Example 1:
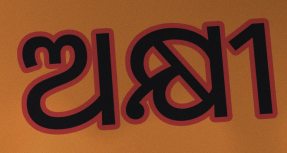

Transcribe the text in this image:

ଅକ୍ଷୀ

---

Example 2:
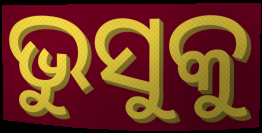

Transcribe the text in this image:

ଭୁସୁକୁ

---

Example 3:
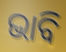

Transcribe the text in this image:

ଭାବି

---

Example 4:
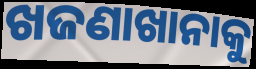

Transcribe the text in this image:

ଖଜଣାଖାନାକୁ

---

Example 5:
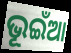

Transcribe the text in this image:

ଭୂଇଁଆ